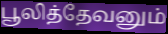
பூலித்தேவனும்